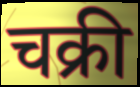
चक्री